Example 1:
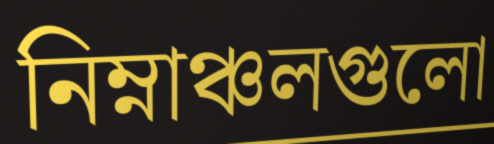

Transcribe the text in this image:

নিম্নাঞ্চলগুলো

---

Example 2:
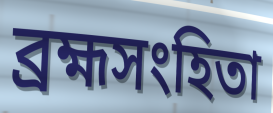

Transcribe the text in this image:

ব্রহ্মসংহিতা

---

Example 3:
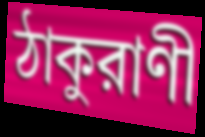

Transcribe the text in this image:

ঠাকুরাণী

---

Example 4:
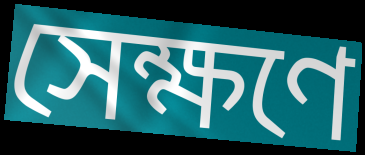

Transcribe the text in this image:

সেক্ষণে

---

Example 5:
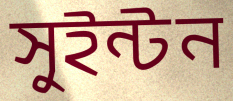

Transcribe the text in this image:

সুইন্টন